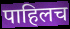
पाहिलच